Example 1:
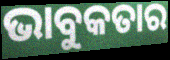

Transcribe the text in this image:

ଭାବୁକତାର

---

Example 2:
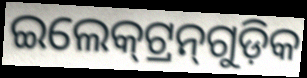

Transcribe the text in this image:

ଇଲେକ୍‍ଟ୍ରନ୍‍ଗୁଡ଼ିକ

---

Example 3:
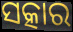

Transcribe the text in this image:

ସତ୍କାର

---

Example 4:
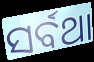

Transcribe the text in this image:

ସର୍ବଥା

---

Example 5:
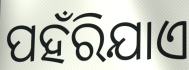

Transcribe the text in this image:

ପହଁରିଯାଏ